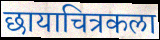
छायाचित्रकला